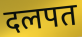
दलपत